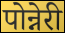
पोन्नेरी